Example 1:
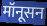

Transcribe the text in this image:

मॉनूसन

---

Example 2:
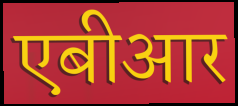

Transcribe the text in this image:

एबीआर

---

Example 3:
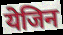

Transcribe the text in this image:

येजिन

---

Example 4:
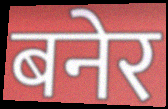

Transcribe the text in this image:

बनेर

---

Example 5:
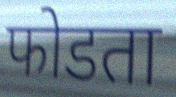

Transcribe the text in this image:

फोडता